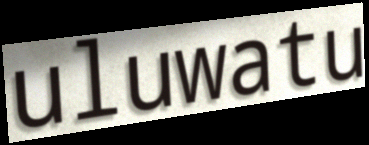
uluwatu